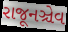
રાજૂનઞ્ચેવ